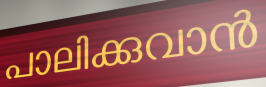
പാലിക്കുവാൻ